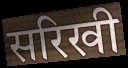
सरिखी